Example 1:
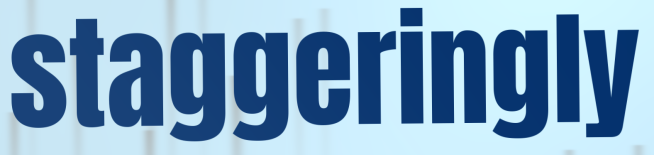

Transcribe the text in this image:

staggeringly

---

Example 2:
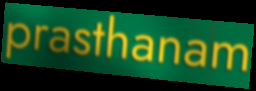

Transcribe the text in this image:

prasthanam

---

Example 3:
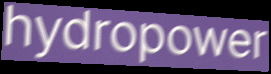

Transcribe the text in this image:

hydropower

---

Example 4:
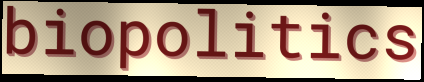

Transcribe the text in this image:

biopolitics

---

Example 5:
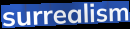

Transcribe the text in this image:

surrealism